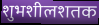
शुभशीलशतक